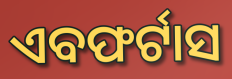
ଏବଫର୍ଟାସ